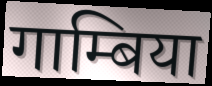
गाम्बिया